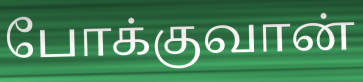
போக்குவான்